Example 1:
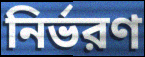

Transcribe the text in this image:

নির্ভরণ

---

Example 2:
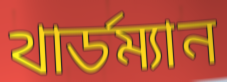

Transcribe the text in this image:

থার্ডম্যান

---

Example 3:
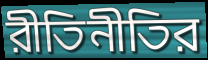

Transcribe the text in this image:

রীতিনীতির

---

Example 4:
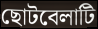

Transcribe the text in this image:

ছোটবেলাটি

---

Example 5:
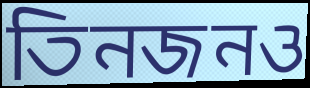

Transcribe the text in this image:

তিনজনও